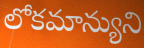
లోకమాన్యుని